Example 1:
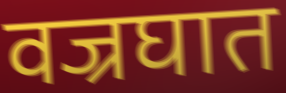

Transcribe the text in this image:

वज्रघात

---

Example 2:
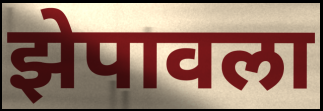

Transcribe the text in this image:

झेपावला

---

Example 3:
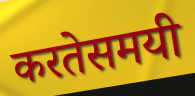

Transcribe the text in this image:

करतेसमयी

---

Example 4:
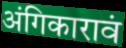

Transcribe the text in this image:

अंगिकारावं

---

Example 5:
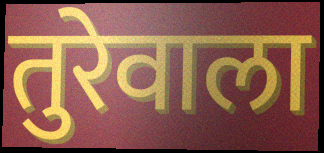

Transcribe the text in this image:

तुरेवाला